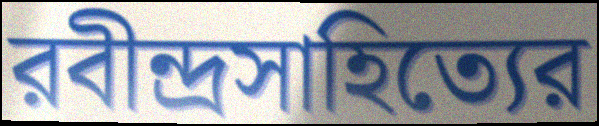
রবীন্দ্রসাহিত্যের